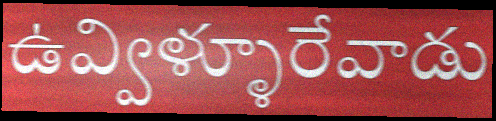
ఉవ్విళ్ళూరేవాడు